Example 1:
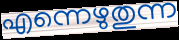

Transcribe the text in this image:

എന്നെഴുതുന്ന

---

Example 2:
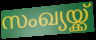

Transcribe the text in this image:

സംഖ്യയ്ക്ക്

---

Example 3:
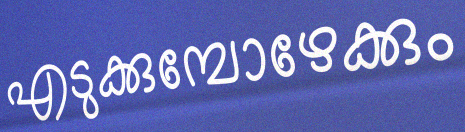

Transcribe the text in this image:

എടുക്കുമ്പോഴേക്കും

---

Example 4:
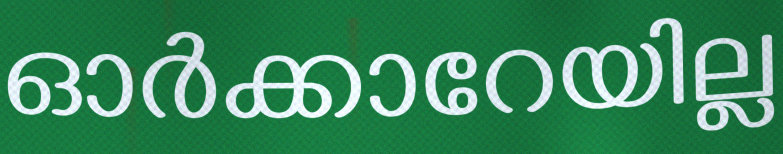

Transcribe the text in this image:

ഓർക്കാറേയില്ല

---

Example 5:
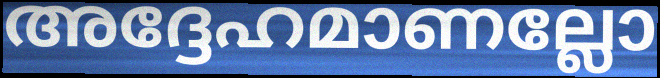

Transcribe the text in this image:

അദ്ദേഹമാണല്ലോ